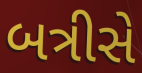
બત્રીસે